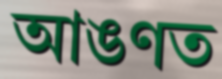
আঙণত